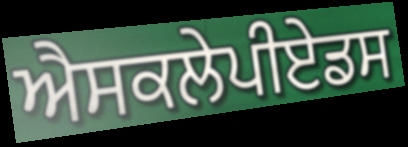
ਐਸਕਲੇਪੀਏਡਸ